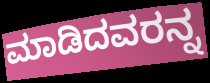
ಮಾಡಿದವರನ್ನ